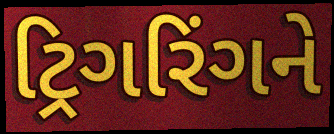
ટ્રિગરિંગને